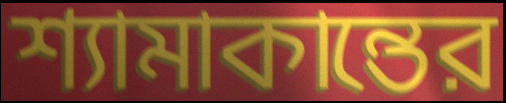
শ্যামাকান্তের